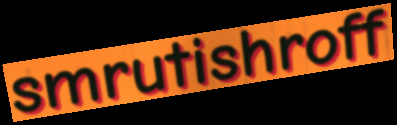
smrutishroff